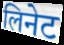
लिनेट